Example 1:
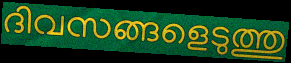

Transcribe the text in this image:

ദിവസങ്ങളെടുത്തു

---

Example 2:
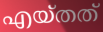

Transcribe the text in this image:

എയ്തത്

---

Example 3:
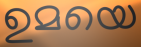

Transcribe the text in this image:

ഉമയെ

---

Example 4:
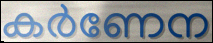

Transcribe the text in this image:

കർണേന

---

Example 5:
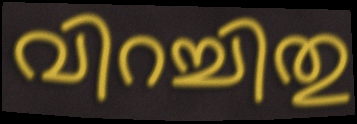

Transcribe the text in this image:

വിറച്ചിതു